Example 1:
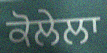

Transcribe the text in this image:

ਕੋਲੇਲਾ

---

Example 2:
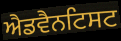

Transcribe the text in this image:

ਐਡਵੈਨਟਿਸਟ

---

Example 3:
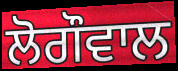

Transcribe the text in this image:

ਲੋਗੌਵਾਲ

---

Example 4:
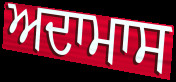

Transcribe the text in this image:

ਅਦਾਮਾਸ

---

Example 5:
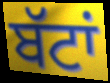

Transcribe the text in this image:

ਬੱਟਾਂ